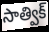
సాత్విక్